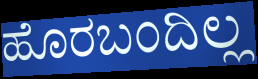
ಹೊರಬಂದಿಲ್ಲ